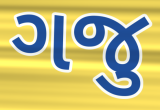
ગજુ